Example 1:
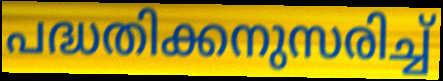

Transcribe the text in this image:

പദ്ധതിക്കനുസരിച്ച്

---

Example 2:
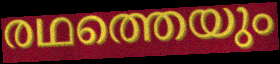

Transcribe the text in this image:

രഥത്തെയും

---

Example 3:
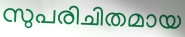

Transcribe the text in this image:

സുപരിചിതമായ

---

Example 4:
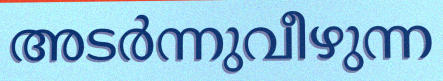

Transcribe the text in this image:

അടർന്നുവീഴുന്ന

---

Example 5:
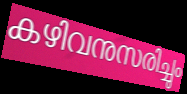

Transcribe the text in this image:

കഴിവനുസരിച്ചും